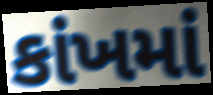
કાંખમાં